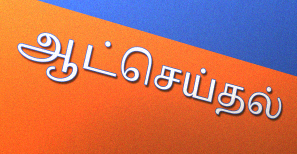
ஆட்செய்தல்